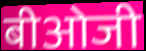
बीओजी